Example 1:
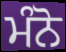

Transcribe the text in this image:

ਮੰਨੋ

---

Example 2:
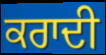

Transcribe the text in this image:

ਕਰਾਦੀ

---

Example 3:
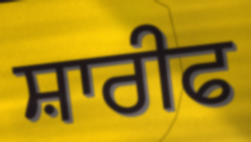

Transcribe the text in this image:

ਸ਼ਾਰੀਫ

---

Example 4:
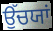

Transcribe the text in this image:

ਉੱਚਯਾਂ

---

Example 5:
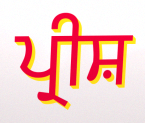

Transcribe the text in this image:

ਪ੍ਰੀਸ਼